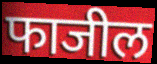
फाजील